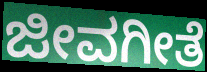
ಜೀವಗೀತೆ